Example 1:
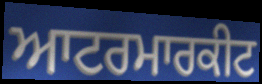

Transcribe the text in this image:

ਆਟਰਮਾਰਕੀਟ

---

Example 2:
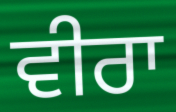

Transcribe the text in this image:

ਵੀਰਾ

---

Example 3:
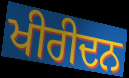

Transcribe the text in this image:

ਖੀਰੀਦਨ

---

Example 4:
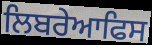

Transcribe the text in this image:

ਲਿਬਰੇਆਫਿਸ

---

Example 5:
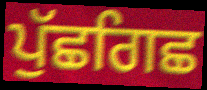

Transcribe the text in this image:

ਪੁੱਛਗਿਛ